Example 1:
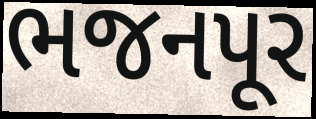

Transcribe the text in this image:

ભજનપૂર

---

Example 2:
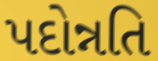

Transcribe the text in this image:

પદોન્નતિ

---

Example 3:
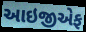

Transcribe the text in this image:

આઇજીએફ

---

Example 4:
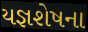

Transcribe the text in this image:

યજ્ઞશેષના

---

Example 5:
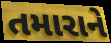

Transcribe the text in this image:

તમારાને